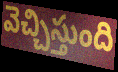
వెచ్చిస్తుంది